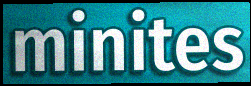
minites